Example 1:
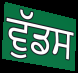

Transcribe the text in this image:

ਵੁੱਡਸ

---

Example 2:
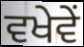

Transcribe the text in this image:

ਵਖੇਵੇਂ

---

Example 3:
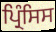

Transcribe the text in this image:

ਪ੍ਰਿੰਸਿਸ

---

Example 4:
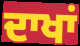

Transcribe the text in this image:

ਦਾਖਾਂ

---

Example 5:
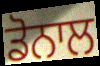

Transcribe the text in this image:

ਡੋਨਾਲ